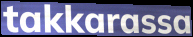
takkarassa